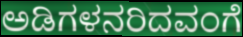
ಅಡಿಗಳನರಿದವಂಗೆ